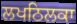
ਲਖਠਿਲਕਾ